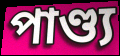
পাণ্ড্য